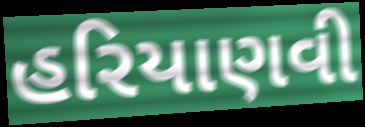
હરિયાણવી